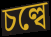
চল্বে